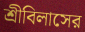
শ্রীবিলাসের